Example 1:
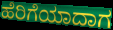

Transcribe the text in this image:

ಹೆರಿಗೆಯಾದಾಗ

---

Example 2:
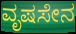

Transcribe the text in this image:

ವೃಷಸೇನ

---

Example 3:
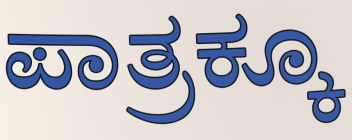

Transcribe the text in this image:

ಪಾತ್ರಕ್ಕೂ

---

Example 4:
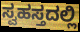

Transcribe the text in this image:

ಸ್ವಹಸ್ತದಲ್ಲಿ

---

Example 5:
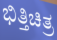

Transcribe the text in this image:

ಭಿತ್ತಿಚಿತ್ರ